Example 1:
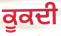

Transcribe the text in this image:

ਕੂਕਦੀ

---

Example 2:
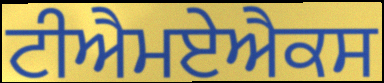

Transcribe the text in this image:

ਟੀਐਮਏਐਕਸ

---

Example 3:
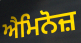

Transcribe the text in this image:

ਐਮਿਨੋਜ਼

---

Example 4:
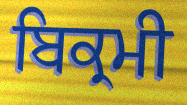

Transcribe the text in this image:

ਬਿਕ੍ਰਮੀ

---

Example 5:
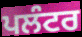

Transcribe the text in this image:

ਪਲੰਟਰ